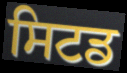
ਸਿਟਡ